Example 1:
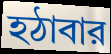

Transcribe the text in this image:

হঠাবার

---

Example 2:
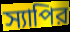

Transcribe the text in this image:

স্যাপির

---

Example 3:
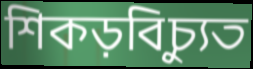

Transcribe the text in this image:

শিকড়বিচ্যুত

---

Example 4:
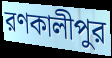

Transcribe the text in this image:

রণকালীপুর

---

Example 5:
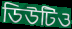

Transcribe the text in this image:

ডিউটিও